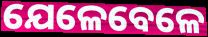
ଯେଳେବେଳେ